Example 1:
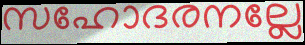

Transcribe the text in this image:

സഹോദരനല്ലേ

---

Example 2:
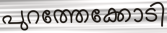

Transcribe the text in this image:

പുറത്തേക്കോടി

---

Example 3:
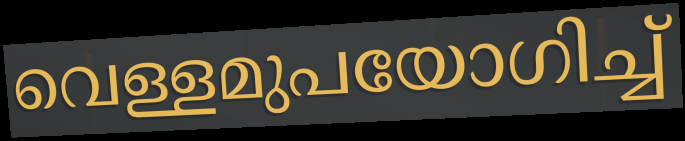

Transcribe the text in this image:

വെള്ളമുപയോഗിച്ച്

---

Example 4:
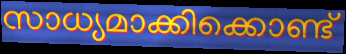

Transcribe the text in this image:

സാധ്യമാക്കിക്കൊണ്ട്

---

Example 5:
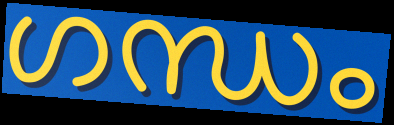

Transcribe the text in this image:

ഗന്ധം